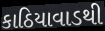
કાઠિયાવાડથી